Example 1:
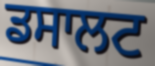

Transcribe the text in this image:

ਡਸਾਲਟ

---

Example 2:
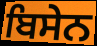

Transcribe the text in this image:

ਬਿਸੇਨ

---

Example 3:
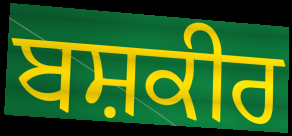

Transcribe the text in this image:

ਬਸ਼ਕੀਰ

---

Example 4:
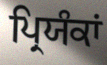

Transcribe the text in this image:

ਪ੍ਰਿਯੰਕਾਂ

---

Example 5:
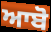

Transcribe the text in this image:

ਆਬੋ